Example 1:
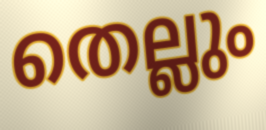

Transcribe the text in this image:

തെല്ലും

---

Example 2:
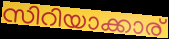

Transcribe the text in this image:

സിറിയാക്കാര്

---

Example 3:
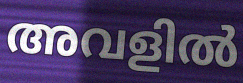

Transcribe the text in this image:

അവളിൽ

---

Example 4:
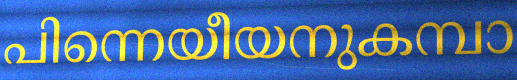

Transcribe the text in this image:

പിന്നെയീയനുകമ്പാ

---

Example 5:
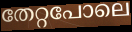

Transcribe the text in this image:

തേറ്റപോലെ